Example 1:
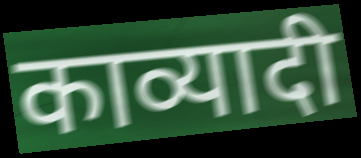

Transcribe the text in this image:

काव्यादी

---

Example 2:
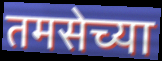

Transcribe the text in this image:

तमसेच्या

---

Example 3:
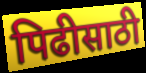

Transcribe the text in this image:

पिढीसाठी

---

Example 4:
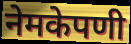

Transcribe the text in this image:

नेमकेपणी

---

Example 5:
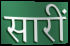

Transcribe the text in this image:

सारीं